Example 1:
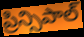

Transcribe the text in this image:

ప్రిన్సిపాల్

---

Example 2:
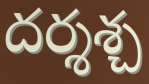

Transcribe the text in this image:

దర్శశ్చ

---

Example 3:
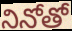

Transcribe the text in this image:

నినోతో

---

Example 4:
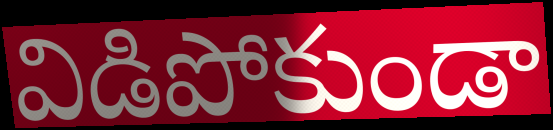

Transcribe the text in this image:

విడిపోకుండా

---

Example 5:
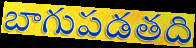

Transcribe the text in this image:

బాగుపడతది